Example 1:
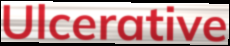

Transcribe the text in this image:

Ulcerative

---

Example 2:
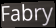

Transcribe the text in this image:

Fabry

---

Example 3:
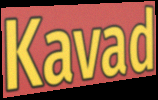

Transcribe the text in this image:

Kavad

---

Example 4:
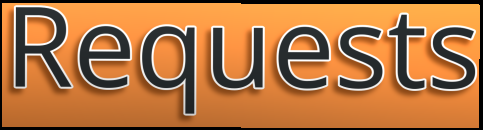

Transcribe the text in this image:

Requests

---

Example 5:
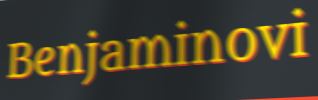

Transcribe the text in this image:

Benjaminovi